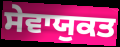
ਸੇਵਾਯੁਕਤ